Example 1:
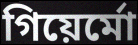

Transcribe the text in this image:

গিয়ের্মো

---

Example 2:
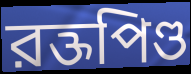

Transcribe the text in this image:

রক্তপিণ্ড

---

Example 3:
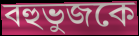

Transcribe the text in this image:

বহুভুজকে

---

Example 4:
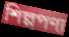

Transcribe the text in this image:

শিল্পপণ্য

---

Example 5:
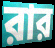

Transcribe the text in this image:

রার